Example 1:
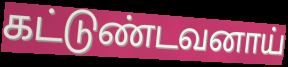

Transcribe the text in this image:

கட்டுண்டவனாய்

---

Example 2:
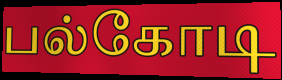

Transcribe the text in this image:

பல்கோடி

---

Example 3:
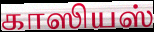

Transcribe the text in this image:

காஸியஸ்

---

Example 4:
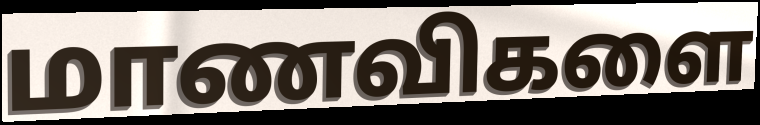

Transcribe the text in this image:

மாணவிகளை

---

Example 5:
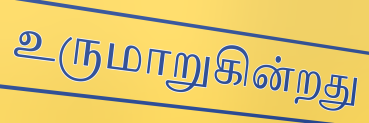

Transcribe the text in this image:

உருமாறுகின்றது